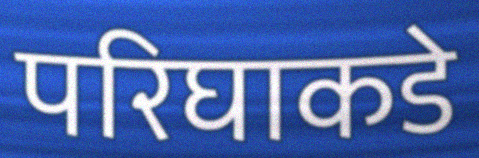
परिघाकडे